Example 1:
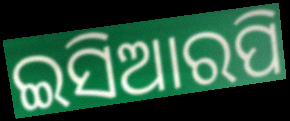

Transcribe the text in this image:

ଇସିଆରପି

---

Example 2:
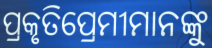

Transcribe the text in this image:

ପ୍ରକୃତିପ୍ରେମୀମାନଙ୍କୁ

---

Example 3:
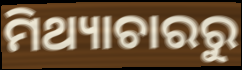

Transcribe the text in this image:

ମିଥ୍ୟାଚାରରୁ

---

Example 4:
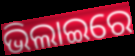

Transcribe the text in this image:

ଭିଲାଇରେ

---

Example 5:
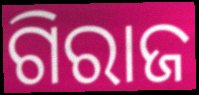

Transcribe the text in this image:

ଗିରାଜ